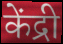
केंद्री